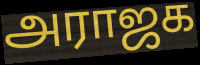
அராஜக